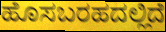
ಹೊಸಬರಹದಲ್ಲಿದೆ